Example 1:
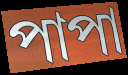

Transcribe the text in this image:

পাপা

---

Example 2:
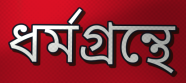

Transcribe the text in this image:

ধর্মগ্রন্থে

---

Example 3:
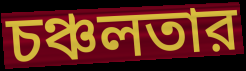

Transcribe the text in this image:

চঞ্চলতার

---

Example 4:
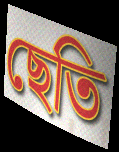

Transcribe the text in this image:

ছেতি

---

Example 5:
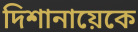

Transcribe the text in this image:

দিশানায়েকে